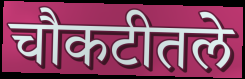
चौकटीतले